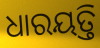
ଧାରୟତ୍ତି